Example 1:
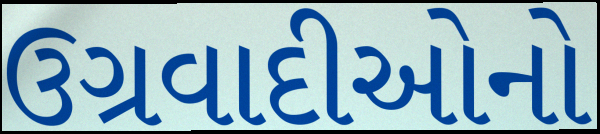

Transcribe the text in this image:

ઉગ્રવાદીઓનો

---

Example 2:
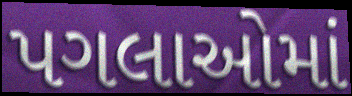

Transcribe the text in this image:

પગલાઓમાં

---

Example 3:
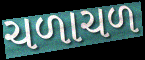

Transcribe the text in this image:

ચળાચળ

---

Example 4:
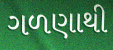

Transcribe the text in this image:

ગળણાથી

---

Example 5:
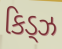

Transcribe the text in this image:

કિડ્ઝ